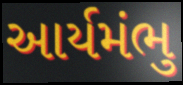
આર્યમંભુ